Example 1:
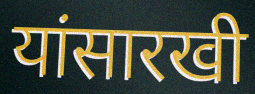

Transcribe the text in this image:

यांसारखी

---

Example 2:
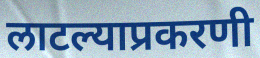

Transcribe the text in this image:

लाटल्याप्रकरणी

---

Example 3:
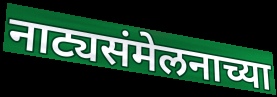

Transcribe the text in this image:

नाट्यसंमेलनाच्या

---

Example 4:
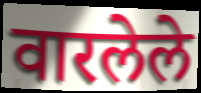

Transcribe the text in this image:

वारलेले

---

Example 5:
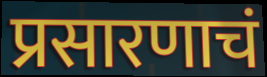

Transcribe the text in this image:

प्रसारणाचं